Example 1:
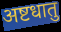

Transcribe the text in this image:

अष्टधातु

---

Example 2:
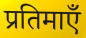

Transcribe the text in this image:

प्रतिमाएँ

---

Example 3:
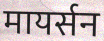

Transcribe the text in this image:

मायर्सन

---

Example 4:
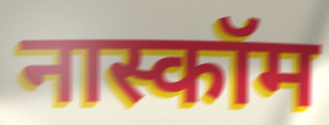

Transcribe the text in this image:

नास्कॉम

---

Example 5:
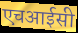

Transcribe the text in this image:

एचआईसी